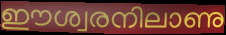
ഈശ്വരനിലാണു